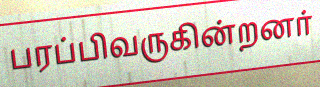
பரப்பிவருகின்றனர்